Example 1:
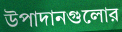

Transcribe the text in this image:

উপাদানগুলোর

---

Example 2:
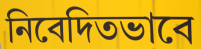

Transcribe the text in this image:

নিবেদিতভাবে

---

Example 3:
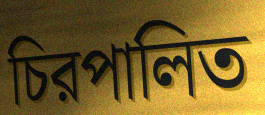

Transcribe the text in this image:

চিরপালিত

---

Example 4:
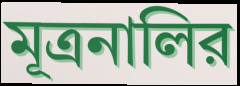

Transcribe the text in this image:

মূত্রনালির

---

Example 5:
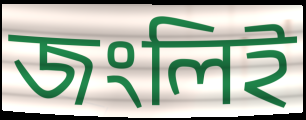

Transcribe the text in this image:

জংলিই